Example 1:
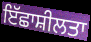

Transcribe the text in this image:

ਇੱਛਾਸ਼ੀਲਤਾ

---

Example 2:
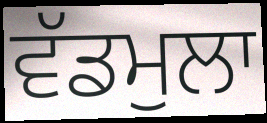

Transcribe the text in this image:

ਵੱਡਮੁਲਾ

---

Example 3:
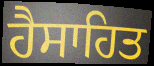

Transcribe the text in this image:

ਹੈਸਾਹਿਤ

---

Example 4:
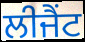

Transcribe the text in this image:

ਲੀਜੈਂਟ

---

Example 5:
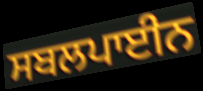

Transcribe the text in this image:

ਸਬਲਪਾਈਨ